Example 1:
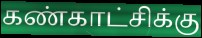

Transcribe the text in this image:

கண்காட்சிக்கு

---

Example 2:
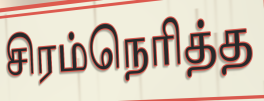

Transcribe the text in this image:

சிரம்நெரித்த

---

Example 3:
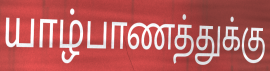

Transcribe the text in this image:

யாழ்பாணத்துக்கு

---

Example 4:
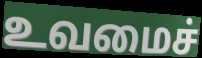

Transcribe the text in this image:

உவமைச்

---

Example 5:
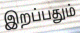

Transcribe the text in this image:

இறப்பதும்